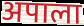
अपाला